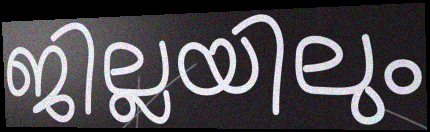
ജില്ലയിലും